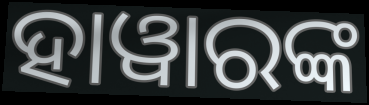
ହାୱାରଙ୍କ